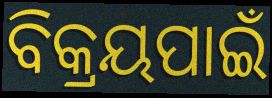
ବିକ୍ରୟପାଇଁ